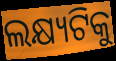
ଲକ୍ଷ୍ୟଟିକୁ